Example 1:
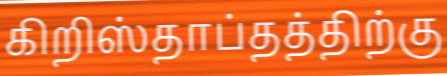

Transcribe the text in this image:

கிறிஸ்தாப்தத்திற்கு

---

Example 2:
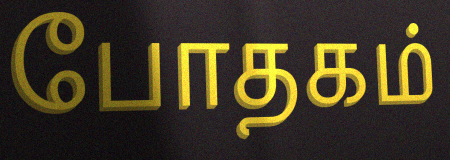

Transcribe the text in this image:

போதகம்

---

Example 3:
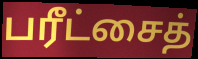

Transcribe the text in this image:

பரீட்சைத்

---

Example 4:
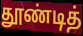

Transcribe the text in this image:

தூண்டித்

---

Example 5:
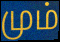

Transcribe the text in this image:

மும்